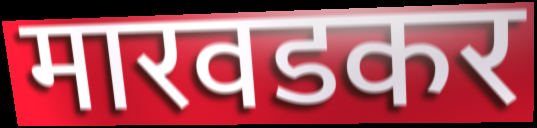
मारवडकर